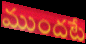
ముందటే